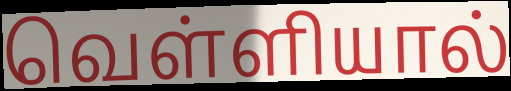
வெள்ளியால்